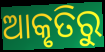
ଆକୃତିରୁ